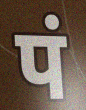
पं